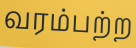
வரம்பற்ற